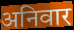
अनिवार